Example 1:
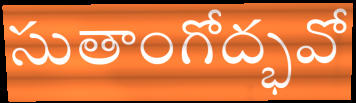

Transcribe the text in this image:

సుతాంగోద్భవో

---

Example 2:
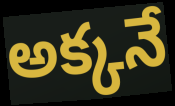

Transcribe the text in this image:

అక్కనే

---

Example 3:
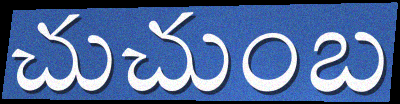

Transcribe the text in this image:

చుచుంబ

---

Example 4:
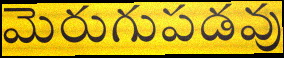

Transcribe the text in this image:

మెరుగుపడవు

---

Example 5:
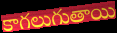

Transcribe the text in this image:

కాగలుగుతాయి